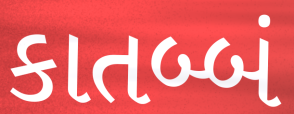
કાતબ્બં